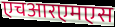
एचआरएमएस